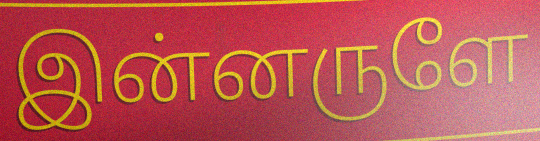
இன்னருளே